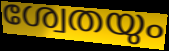
ശ്വേതയും